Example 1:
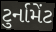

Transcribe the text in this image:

ટુર્નામેંટ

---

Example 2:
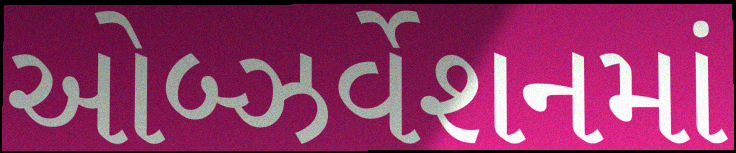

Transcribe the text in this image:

ઓબ્ઝર્વેશનમાં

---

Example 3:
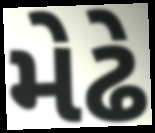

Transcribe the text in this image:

મેઢે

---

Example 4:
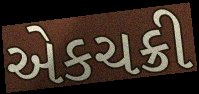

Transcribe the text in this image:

એકચક્રી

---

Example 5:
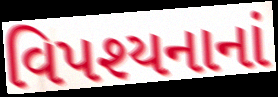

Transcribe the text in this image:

વિપશ્યનાનાં